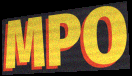
MPO